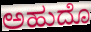
ಅಹುದೊ